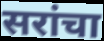
सरांचा